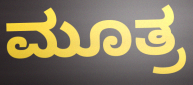
ಮೂತ್ರ